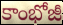
కాంభోజీ